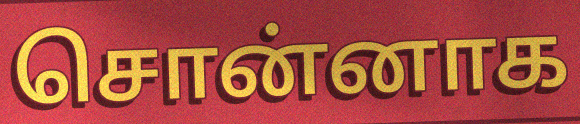
சொன்னாக